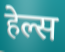
हेल्स